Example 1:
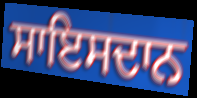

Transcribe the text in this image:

ਸਾਇਸਦਾਨ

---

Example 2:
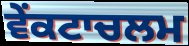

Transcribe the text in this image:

ਵੇਂਕਟਾਚਲਮ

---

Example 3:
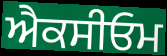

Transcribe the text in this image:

ਐਕਸੀਓਮ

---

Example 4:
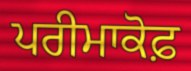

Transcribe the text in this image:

ਪਰੀਮਾਕੋਫ਼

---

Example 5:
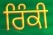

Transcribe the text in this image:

ਰਿੰਕੀ